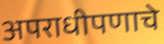
अपराधीपणाचे